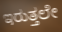
ಇರುತ್ತಲೇ